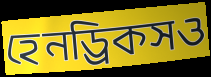
হেনড্রিকসও